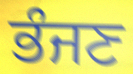
ਭੰਜਣ